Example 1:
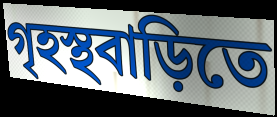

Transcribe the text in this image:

গৃহস্থবাড়িতে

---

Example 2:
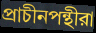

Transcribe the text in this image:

প্রাচীনপন্থীরা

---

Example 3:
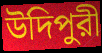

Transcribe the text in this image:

উদিপুরী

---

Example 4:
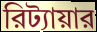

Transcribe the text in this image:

রিট্যায়ার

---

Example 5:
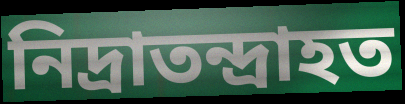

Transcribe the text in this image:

নিদ্রাতন্দ্রাহত